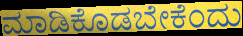
ಮಾಡಿಕೊಡಬೇಕೆಂದು